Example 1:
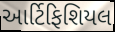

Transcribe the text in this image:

આર્ટિફિશિયલ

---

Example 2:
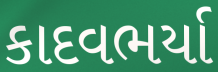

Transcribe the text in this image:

કાદવભર્યા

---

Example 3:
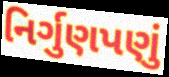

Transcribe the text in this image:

નિર્ગુણપણું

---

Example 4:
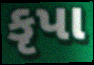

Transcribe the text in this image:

કૃપા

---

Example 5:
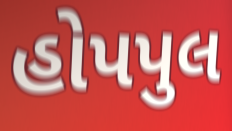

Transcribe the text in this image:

હોપપુલ